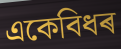
একেবিধৰ